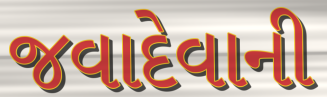
જવાદેવાની